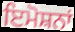
ਇਮੋਸ਼ਨਾਂ